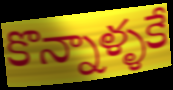
కొన్నాళ్ళకే